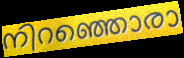
നിറഞ്ഞൊരാ